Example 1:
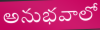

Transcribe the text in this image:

అనుభవాలో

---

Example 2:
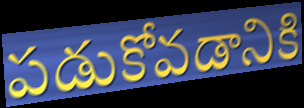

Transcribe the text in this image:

పడుకోవడానికి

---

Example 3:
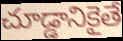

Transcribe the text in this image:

చూడ్డానికైతే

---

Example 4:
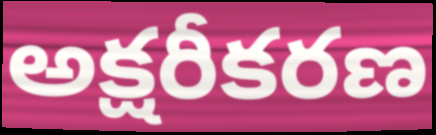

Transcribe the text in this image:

అక్షరీకరణ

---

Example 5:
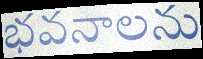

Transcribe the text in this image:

భవనాలను